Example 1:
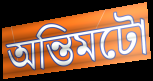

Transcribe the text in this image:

অন্তিমটো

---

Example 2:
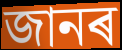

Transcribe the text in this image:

জানৰ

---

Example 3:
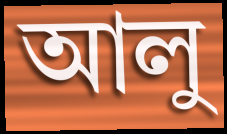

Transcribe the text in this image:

আলু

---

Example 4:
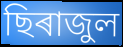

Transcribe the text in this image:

ছিৰাজুল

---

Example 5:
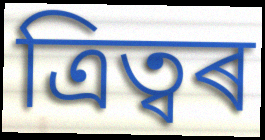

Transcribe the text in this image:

ত্ৰিত্বৰ